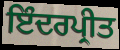
ਇੰਦਰਪ੍ਰੀਤ